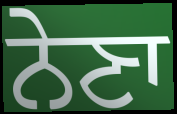
ਨੇਣਾ